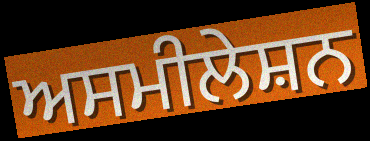
ਅਸਮੀਲੇਸ਼ਨ